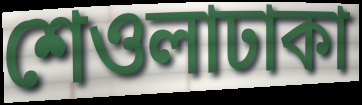
শেওলাঢাকা